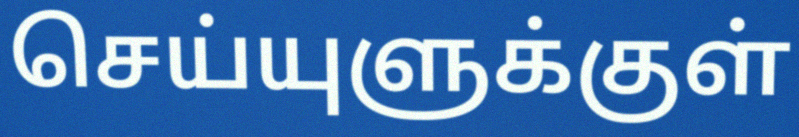
செய்யுளுக்குள்